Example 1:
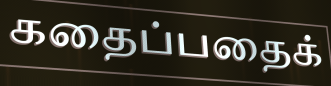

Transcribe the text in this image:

கதைப்பதைக்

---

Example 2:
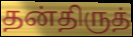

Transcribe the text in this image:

தன்திருத்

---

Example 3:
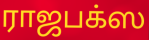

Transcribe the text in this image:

ராஜபக்ஸ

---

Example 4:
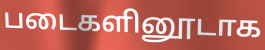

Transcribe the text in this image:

படைகளினூடாக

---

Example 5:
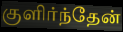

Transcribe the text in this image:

குளிர்ந்தேன்